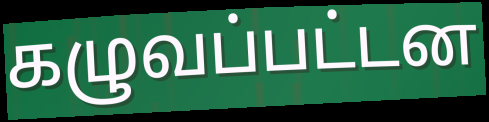
கழுவப்பட்டன